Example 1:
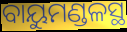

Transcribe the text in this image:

ବାୟୁମଣ୍ଡଳସ୍ଥ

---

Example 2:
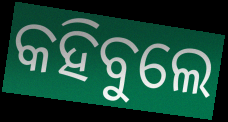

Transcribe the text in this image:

କହିବୁଲେ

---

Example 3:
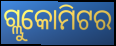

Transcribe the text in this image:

ଗ୍ଲୁକୋମିଟର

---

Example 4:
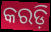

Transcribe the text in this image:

କରଡ଼ି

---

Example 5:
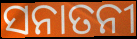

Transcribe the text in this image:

ସନାତନୀ